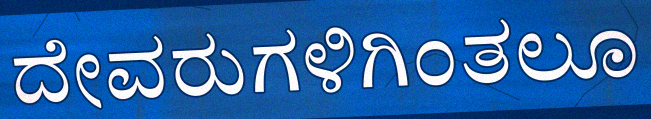
ದೇವರುಗಳಿಗಿಂತಲೂ